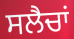
ਸਲੈਚਾਂ